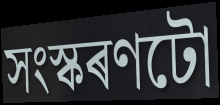
সংস্কৰণটো